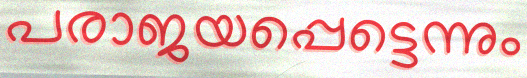
പരാജയപ്പെട്ടെന്നും